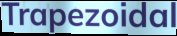
Trapezoidal